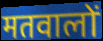
मतवालों